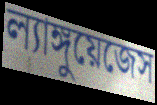
ল্যাঙ্গুয়েজেস